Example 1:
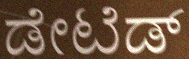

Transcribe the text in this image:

ಡೇಟೆಡ್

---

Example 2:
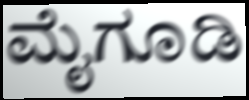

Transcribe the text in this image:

ಮೈಗೂಡಿ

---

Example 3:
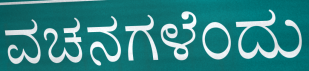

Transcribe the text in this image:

ವಚನಗಳೆಂದು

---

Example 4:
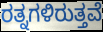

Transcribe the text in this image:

ರತ್ನಗಳಿರುತ್ತವೆ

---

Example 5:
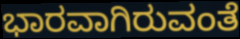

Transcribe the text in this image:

ಭಾರವಾಗಿರುವಂತೆ